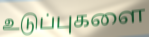
உடுப்புகளை